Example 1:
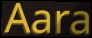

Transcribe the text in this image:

Aara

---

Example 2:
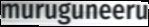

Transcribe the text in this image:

muruguneeru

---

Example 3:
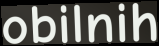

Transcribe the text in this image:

obilnih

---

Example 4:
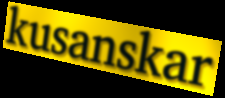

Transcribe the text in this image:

kusanskar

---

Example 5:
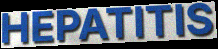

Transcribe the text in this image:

HEPATITIS